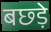
बछ्ड़े